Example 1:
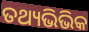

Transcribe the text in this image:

ତଥ୍ୟଭିଭିକ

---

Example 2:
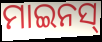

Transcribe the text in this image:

ମାଇନସ୍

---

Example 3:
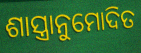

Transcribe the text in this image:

ଶାସ୍ତ୍ରାନୁମୋଦିତ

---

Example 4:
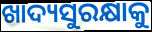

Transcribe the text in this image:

ଖାଦ୍ୟସୁରକ୍ଷାକୁ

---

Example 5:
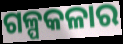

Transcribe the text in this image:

ଗଳ୍ପକଳାର